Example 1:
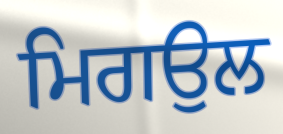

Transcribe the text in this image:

ਮਿਗਉਲ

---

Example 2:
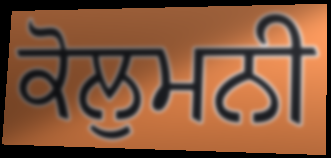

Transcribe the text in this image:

ਕੋਲੁਮਨੀ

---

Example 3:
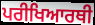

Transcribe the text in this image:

ਪਰੀਖਿਆਰਥੀ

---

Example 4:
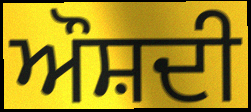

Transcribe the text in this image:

ਔਸ਼ਦੀ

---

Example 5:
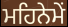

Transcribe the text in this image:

ਮਹਿਨੇਮੇਂ